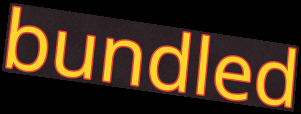
bundled